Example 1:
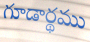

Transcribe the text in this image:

గూడార్థము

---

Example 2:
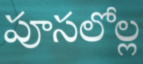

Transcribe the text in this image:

పూసలోల్ల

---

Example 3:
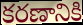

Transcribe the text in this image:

కరణానికి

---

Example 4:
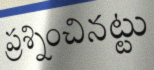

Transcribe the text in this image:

ప్రశ్నించినట్టు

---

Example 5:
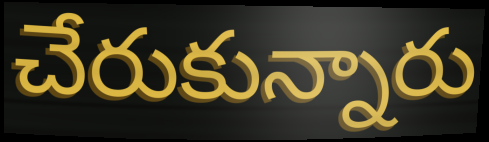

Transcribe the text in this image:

చేరుకున్నారు